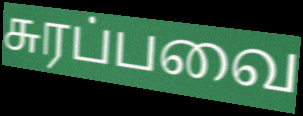
சுரப்பவை